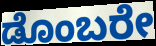
ಡೊಂಬರೇ